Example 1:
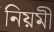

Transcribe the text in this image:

নিয়মী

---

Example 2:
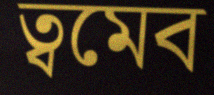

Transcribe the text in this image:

ত্বমেব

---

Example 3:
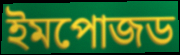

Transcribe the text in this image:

ইমপোজড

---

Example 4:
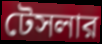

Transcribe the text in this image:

টেসলার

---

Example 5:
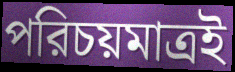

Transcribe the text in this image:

পরিচয়মাত্রই